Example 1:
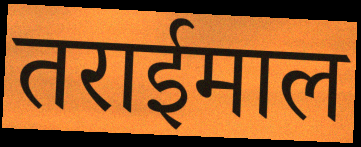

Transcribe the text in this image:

तराईमाल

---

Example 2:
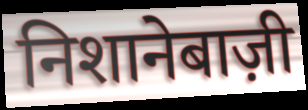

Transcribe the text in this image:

निशानेबाज़ी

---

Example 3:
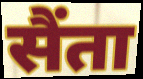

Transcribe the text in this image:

सैंता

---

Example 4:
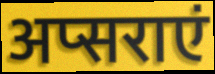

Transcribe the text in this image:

अप्सराएं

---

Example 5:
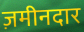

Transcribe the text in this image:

ज़मीनदार